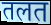
तलत